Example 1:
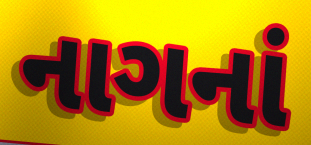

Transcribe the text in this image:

નાગનાં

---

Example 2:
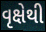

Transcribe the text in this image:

વૃક્ષેથી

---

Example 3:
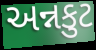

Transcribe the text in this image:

અન્નકુટ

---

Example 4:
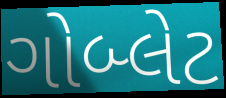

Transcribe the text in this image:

ગોબ્લેટ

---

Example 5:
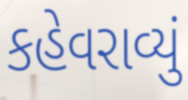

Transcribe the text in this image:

કહેવરાવ્યું